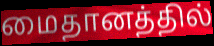
மைதானத்தில்